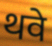
थवे